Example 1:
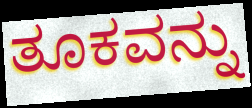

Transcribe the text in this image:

ತೂಕವನ್ನು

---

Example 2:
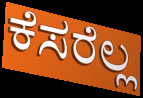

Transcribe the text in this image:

ಕೆಸರೆಲ್ಲ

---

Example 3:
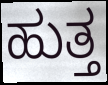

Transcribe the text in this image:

ಹುತ್ತ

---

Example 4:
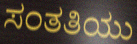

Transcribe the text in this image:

ಸಂತತಿಯು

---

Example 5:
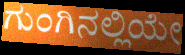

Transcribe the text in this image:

ಗುಂಗಿನಲ್ಲಿಯೇ